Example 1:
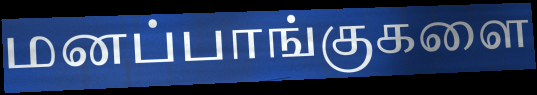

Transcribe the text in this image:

மனப்பாங்குகளை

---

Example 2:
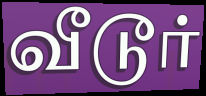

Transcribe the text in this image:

வீடூர்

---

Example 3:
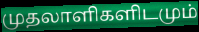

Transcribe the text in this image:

முதலாளிகளிடமும்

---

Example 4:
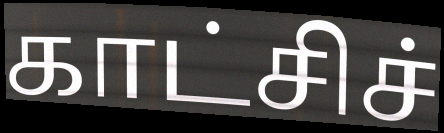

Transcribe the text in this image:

காட்சிச்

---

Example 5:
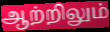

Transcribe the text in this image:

ஆற்றிலும்